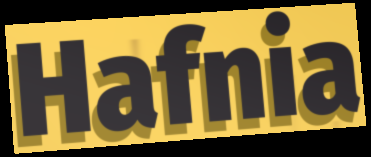
Hafnia